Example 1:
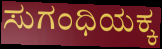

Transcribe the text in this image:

ಸುಗಂಧಿಯಕ್ಕ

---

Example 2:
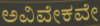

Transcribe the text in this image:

ಅವಿವೇಕವೇ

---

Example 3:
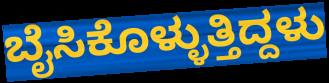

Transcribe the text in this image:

ಬೈಸಿಕೊಳ್ಳುತ್ತಿದ್ದಳು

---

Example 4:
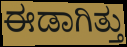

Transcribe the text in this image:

ಈಡಾಗಿತ್ತು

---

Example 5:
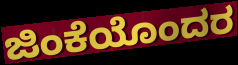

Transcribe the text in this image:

ಜಿಂಕೆಯೊಂದರ